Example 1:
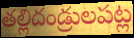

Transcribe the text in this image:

తల్లిదండ్రులపట్ల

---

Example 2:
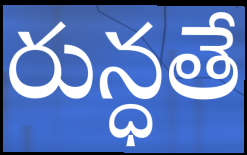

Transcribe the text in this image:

రున్ధతే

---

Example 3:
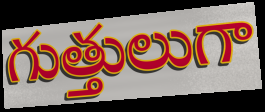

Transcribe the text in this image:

గుత్తులుగా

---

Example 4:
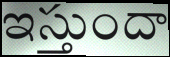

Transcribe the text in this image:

ఇస్తుందా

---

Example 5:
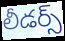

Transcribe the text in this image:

లీడర్స్